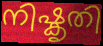
നിഷ്കൃതി